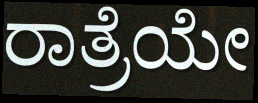
ರಾತ್ರೆಯೇ